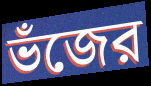
ভঁজের